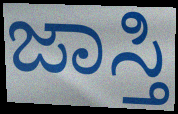
ಜಾಸ್ತಿ